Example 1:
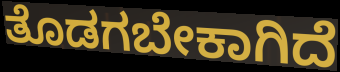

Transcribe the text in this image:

ತೊಡಗಬೇಕಾಗಿದೆ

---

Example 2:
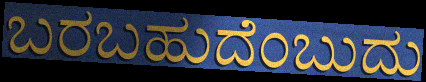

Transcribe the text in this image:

ಬರಬಹುದೆಂಬುದು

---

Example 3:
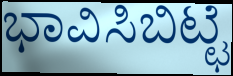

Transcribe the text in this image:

ಭಾವಿಸಿಬಿಟ್ಟೆ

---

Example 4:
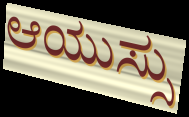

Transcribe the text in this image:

ಆಯುಸ್ಸು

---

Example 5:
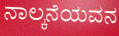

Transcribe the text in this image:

ನಾಲ್ಕನೆಯವನ